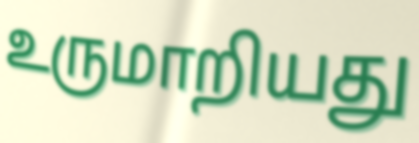
உருமாறியது